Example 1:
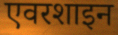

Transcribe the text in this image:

एवरशाइन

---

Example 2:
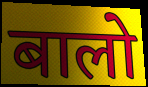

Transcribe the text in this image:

बालो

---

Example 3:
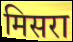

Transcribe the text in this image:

मिसरा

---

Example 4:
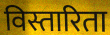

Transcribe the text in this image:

विस्तारिता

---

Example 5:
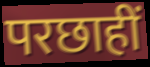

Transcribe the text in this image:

परछाहीं